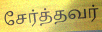
சேர்த்தவர்